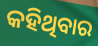
କହିଥିବାର